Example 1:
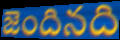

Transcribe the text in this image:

జెందినది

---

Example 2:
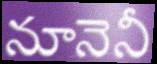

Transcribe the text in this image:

నూనెనీ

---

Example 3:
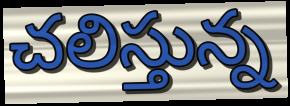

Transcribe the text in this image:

చలిస్తున్న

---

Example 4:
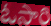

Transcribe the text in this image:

ఓసారి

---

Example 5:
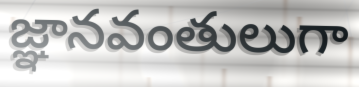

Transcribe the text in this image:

జ్ఞానవంతులుగా